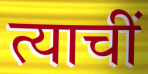
त्याचीं